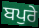
ਬਪੁਰੇ